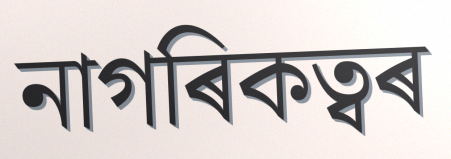
নাগৰিকত্বৰ